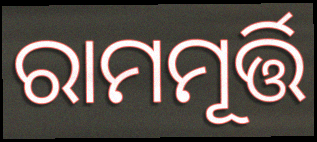
ରାମମୂର୍ତ୍ତି